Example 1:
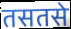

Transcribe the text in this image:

तसतसे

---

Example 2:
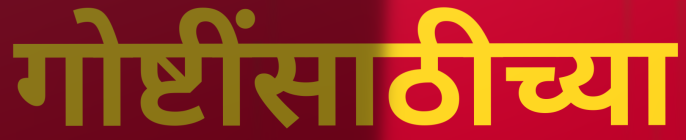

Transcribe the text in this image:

गोष्टींसाठीच्या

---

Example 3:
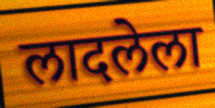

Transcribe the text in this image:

लादलेला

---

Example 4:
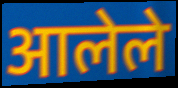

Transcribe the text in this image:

आलेले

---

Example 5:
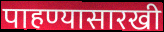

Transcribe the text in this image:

पाहण्यासारखी